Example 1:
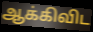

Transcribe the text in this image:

ஆக்கிவிட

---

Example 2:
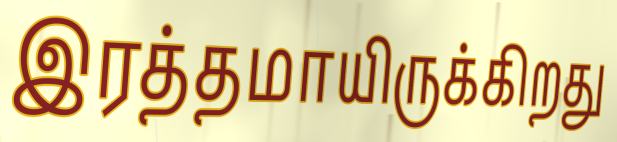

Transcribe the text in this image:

இரத்தமாயிருக்கிறது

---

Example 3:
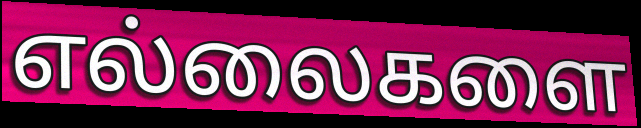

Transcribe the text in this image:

எல்லைகளை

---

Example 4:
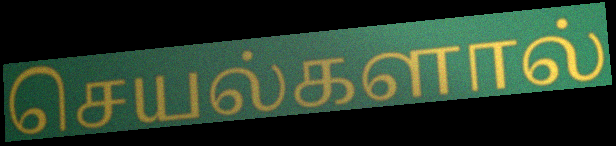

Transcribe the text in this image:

செயல்களால்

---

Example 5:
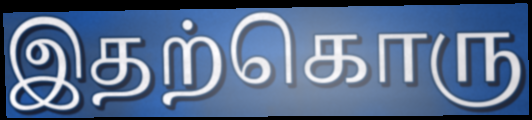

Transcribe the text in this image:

இதற்கொரு